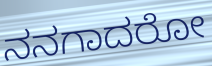
ನನಗಾದರೋ